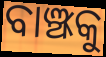
ବାଞ୍ଝକୁ